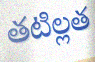
తటిల్లత